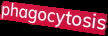
phagocytosis